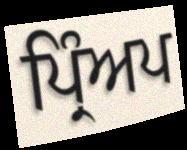
ਪ੍ਰਿੰਅਪ